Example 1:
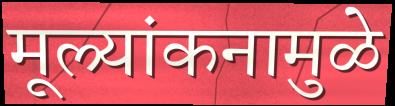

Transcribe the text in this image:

मूल्यांकनामुळे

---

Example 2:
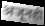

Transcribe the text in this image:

अजूनही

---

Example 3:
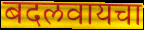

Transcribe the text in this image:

बदलवायचा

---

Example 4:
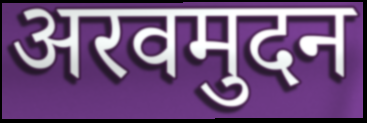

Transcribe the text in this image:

अरवमुदन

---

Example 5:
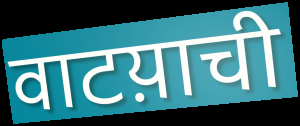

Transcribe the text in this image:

वाटय़ाची